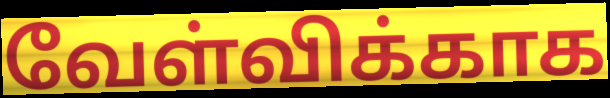
வேள்விக்காக